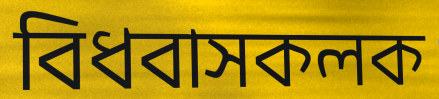
বিধবাসকলক